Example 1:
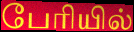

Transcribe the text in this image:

பேரியில்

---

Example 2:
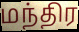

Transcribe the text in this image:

மந்திர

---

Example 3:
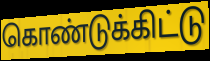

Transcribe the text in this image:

கொண்டுக்கிட்டு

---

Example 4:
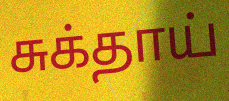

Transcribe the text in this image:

சுக்தாய்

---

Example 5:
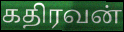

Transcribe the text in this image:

கதிரவன்